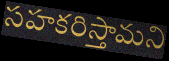
సహకరిస్తామని